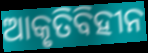
ଆକୃତିବିହୀନ